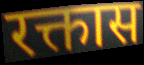
रक्तास